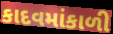
કાદવમાંકાળી